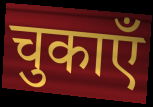
चुकाएँ